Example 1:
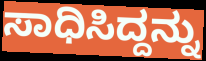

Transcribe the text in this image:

ಸಾಧಿಸಿದ್ದನ್ನು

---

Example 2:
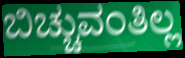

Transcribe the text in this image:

ಬಿಚ್ಚುವಂತಿಲ್ಲ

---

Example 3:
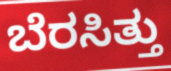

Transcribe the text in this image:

ಬೆರಸಿತ್ತು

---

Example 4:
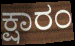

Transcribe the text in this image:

ಕ್ಷಾರಂ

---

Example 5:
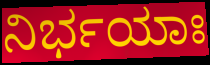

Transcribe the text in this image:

ನಿರ್ಭಯಾಃ